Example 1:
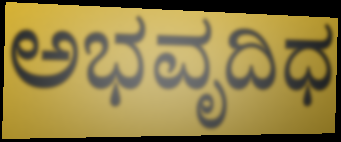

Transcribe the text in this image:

ಅಭವೃದಿಧ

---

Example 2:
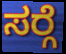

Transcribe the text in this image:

ಸರ್‍ಗೆ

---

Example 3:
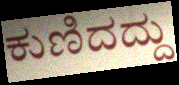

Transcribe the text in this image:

ಕುಣಿದದ್ದು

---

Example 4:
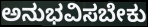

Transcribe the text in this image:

ಅನುಭವಿಸಬೇಕು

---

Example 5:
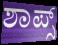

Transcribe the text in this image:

ಶಾಪ್ಸ್